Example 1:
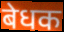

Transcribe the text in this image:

बेधक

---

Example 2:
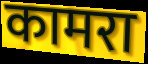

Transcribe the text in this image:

कामरा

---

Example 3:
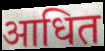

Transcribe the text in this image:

आधित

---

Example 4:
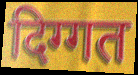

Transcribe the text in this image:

दिग्गत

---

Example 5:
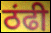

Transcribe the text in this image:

ठंढी